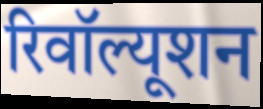
रिवॉल्यूशन